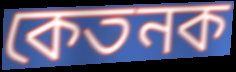
কেতনক